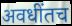
अवधींतच